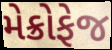
મેક્રોફેજ